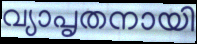
വ്യാപൃതനായി